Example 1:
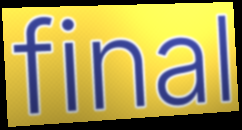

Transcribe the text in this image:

final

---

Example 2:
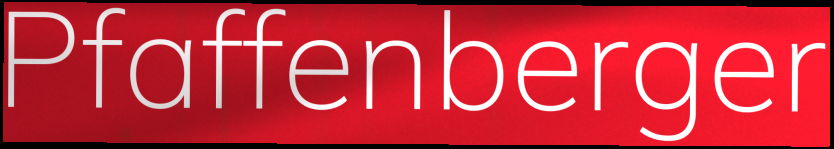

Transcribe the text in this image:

Pfaffenberger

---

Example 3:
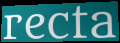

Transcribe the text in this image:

recta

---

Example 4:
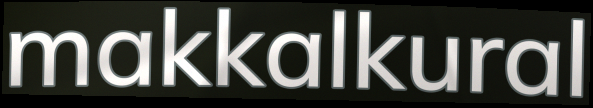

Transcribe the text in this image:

makkalkural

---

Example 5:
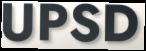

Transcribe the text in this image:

UPSD